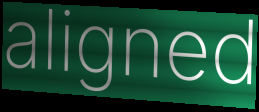
aligned